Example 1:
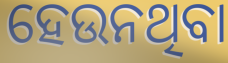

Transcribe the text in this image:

ହେଉନଥିବା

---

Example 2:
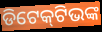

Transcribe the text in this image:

ଡିଟେକ୍‌ଟିଭଙ୍କ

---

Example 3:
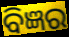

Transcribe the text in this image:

ବିଜ୍ଞର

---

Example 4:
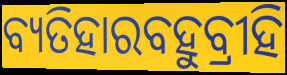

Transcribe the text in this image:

ବ୍ୟତିହାରବହୁବ୍ରୀହି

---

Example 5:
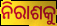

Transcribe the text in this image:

ନିରାଶକୁ